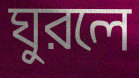
ঘুরলে